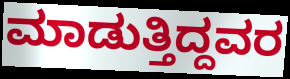
ಮಾಡುತ್ತಿದ್ದವರ